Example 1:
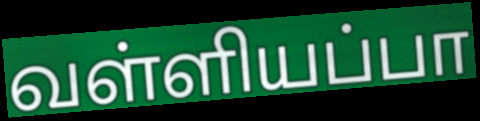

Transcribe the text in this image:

வள்ளியப்பா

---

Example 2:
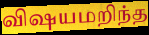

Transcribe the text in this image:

விஷயமறிந்த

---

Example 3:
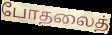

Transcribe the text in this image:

போதலைத்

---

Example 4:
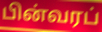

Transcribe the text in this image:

பின்வரப்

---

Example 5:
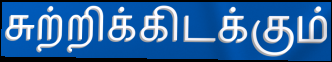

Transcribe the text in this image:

சுற்றிக்கிடக்கும்